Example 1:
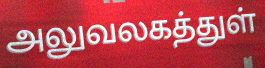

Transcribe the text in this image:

அலுவலகத்துள்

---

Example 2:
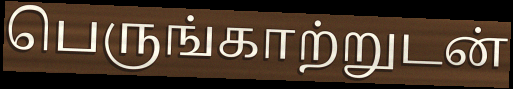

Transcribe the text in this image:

பெருங்காற்றுடன்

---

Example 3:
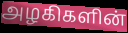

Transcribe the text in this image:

அழகிகளின்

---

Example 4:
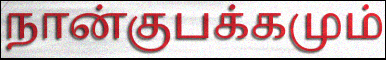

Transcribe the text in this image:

நான்குபக்கமும்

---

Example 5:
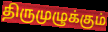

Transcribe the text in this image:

திருமுழுக்கும்